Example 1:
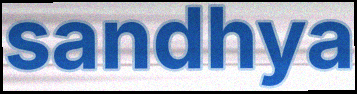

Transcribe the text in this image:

sandhya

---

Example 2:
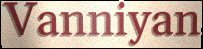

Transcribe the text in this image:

Vanniyan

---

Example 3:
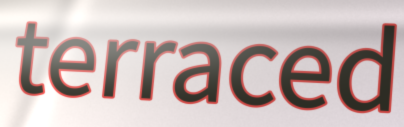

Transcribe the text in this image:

terraced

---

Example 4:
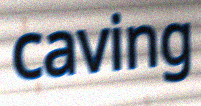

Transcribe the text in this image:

caving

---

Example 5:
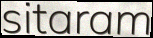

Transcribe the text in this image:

sitaram